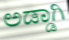
ಅಡ್ಡಾಗಿ